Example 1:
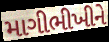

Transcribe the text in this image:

માગીભીખીને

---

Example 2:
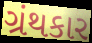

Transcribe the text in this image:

ગ્રંથકાર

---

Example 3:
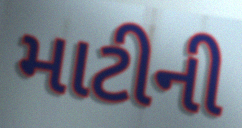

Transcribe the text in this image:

માટીની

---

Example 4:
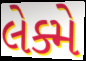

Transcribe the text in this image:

લેક્મે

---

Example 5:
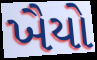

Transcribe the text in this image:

ખૈયો